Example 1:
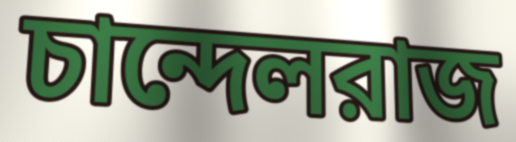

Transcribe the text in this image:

চান্দেলরাজ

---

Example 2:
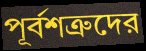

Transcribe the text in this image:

পূর্বশত্রুদের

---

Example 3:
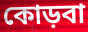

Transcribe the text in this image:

কোড়বা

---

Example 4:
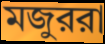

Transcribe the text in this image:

মজুররা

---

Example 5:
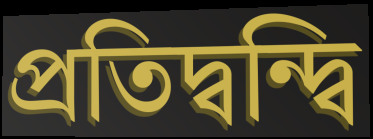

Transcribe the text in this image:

প্রতিদ্বন্দ্বি